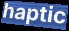
haptic